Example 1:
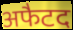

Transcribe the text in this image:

अफैटद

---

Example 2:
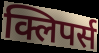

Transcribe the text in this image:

क्लिपर्स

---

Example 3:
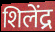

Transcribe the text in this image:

शिलेंद्र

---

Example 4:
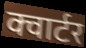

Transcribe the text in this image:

क्‍वार्टर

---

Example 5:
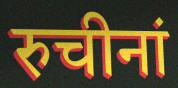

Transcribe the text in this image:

रुचीनां